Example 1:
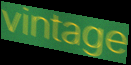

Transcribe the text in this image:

vintage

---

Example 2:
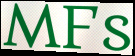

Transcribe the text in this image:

MFs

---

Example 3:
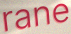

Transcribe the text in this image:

rane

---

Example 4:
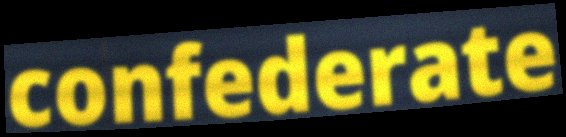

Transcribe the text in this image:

confederate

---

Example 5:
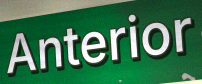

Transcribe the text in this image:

Anterior